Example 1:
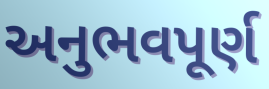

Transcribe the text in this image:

અનુભવપૂર્ણ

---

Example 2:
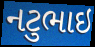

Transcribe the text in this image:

નટુભાઇ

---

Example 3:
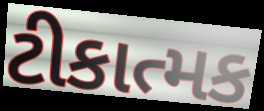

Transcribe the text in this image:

ટીકાત્મક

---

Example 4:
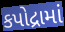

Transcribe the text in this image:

કપોદ્રામાં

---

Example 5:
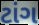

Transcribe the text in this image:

ટાંગ